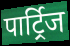
पार्ट्रिज